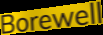
Borewell